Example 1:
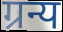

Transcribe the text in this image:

ग्रन्य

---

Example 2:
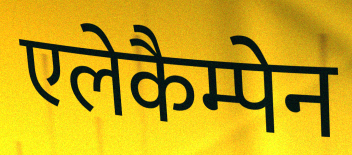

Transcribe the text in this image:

एलेकैम्पेन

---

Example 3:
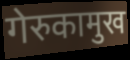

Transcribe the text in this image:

गेरुकामुख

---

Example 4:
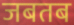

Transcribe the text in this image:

जबतब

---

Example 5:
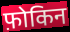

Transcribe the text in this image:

फ़ोकिन